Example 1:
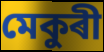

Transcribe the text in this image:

মেকুৰী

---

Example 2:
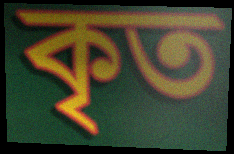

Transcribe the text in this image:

কৃত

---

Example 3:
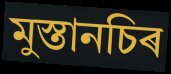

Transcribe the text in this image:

মুস্তানচিৰ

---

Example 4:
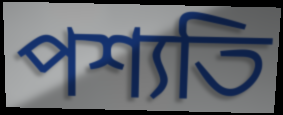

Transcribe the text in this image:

পশ্যতি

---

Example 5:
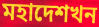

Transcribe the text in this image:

মহাদেশখন